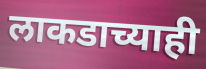
लाकडाच्याही